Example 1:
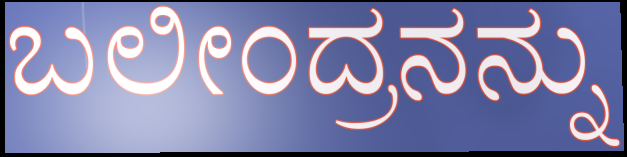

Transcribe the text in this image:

ಬಲೀಂದ್ರನನ್ನು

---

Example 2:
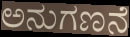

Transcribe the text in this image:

ಅನುಗಣನೆ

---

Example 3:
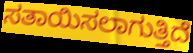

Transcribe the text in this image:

ಸತಾಯಿಸಲಾಗುತ್ತಿದೆ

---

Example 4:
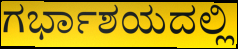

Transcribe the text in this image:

ಗರ್ಭಾಶಯದಲ್ಲಿ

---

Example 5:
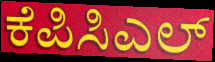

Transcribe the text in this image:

ಕೆಪಿಸಿಎಲ್